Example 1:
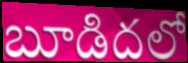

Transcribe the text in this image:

బూడిదలో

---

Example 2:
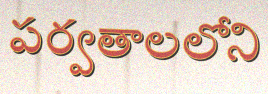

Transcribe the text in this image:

పర్వతాలలోని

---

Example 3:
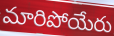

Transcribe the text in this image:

మారిపోయేరు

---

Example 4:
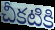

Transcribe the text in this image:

చీకటికి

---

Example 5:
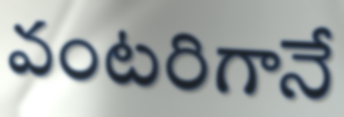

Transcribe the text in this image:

వంటరిగానే